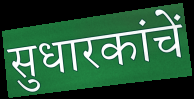
सुधारकांचें